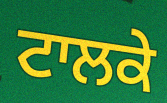
ਟਾਲਕੇ